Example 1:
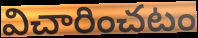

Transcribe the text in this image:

విచారించటం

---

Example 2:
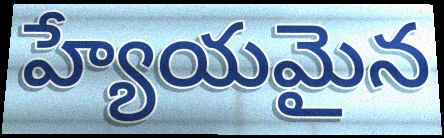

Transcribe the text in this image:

హ్యేయమైన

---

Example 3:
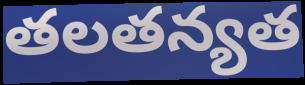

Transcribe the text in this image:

తలతన్యత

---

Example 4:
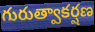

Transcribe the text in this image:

గురుత్వాకర్షణ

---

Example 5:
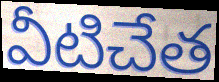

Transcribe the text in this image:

వీటిచేత